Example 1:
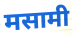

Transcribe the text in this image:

मसामी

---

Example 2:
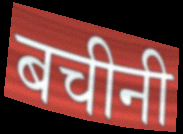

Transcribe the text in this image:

बचीनी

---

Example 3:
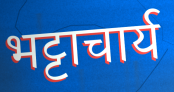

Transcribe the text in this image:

भट्टाचार्य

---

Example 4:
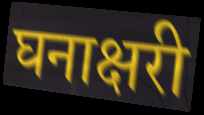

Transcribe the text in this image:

घनाक्षरी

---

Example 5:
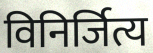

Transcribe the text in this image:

विनिर्जित्य